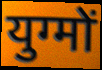
युग्मों